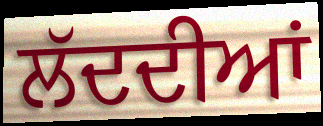
ਲੱਦਦੀਆਂ